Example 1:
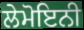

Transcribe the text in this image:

ਲੇਮੋਇਨੀ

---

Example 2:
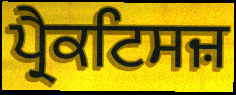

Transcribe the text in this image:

ਪ੍ਰੈਕਟਿਸਜ਼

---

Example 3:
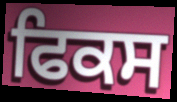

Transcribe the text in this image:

ਫਿਕਸ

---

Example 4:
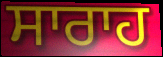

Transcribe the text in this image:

ਸਾਰਾਹ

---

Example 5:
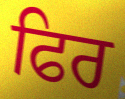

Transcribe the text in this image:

ਫਿਰ